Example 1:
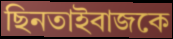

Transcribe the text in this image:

ছিনতাইবাজকে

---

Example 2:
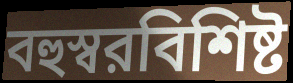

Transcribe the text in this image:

বহুস্বরবিশিষ্ট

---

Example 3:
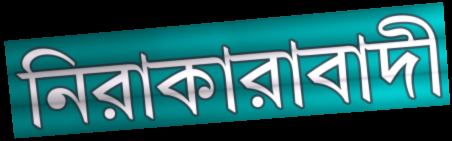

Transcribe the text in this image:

নিরাকারাবাদী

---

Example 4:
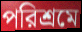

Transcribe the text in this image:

পরিশ্রমে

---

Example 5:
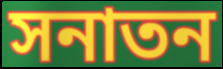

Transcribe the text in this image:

সনাতন